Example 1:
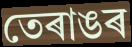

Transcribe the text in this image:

তেৰাঙৰ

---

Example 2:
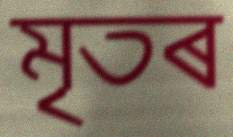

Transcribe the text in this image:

মৃতৰ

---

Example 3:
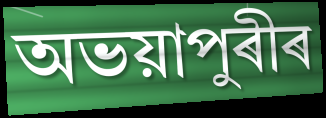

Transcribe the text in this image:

অভয়াপুৰীৰ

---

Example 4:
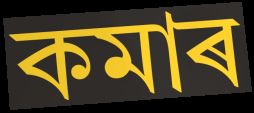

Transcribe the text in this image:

কমাৰ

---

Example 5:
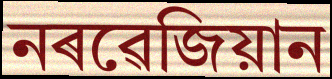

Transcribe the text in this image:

নৰৱেজিয়ান